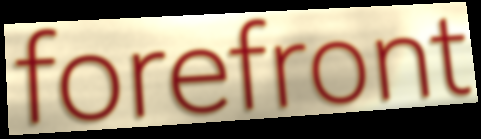
forefront